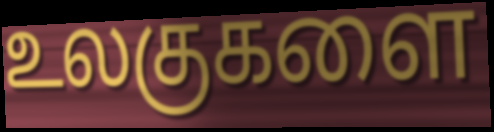
உலகுகளை